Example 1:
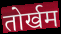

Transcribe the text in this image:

तोर्खम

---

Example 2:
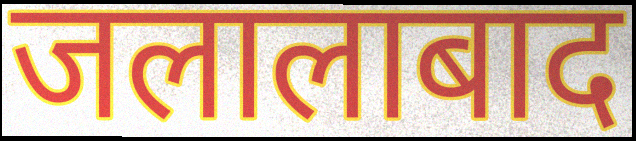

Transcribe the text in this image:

जलालाबाद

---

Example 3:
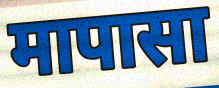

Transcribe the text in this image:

मापासा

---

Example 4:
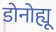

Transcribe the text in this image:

डोनोह्यू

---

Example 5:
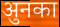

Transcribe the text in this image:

अुनका